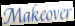
Makeover